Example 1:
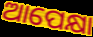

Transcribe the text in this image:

ଆପେକ୍ଷା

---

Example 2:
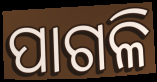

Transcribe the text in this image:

ପାଗଳି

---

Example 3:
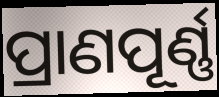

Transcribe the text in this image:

ପ୍ରାଣପୂର୍ଣ୍ଣ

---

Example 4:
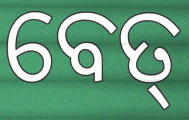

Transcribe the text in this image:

ବେତ୍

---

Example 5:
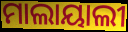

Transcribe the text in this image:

ମାଲାୟାଲୀ